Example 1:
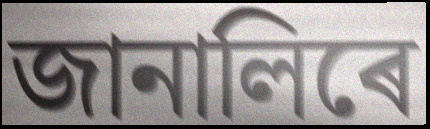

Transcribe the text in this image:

জানালিৰে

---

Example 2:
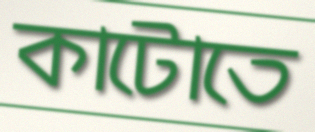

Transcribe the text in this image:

কাটোতে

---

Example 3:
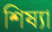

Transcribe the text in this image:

শিষ্যা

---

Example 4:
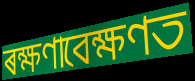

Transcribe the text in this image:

ৰক্ষণাবেক্ষণত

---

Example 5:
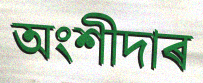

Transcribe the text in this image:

অংশীদাৰ